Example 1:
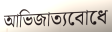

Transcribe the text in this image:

আভিজাত্যবোধে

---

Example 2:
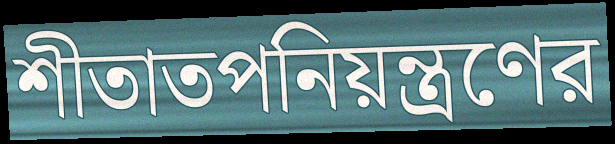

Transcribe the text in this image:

শীতাতপনিয়ন্ত্রণের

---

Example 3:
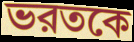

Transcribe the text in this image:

ভরতকে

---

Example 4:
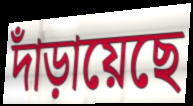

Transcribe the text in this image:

দাঁড়ায়েছে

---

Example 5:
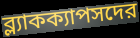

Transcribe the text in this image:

ব্ল্যাকক্যাপসদের